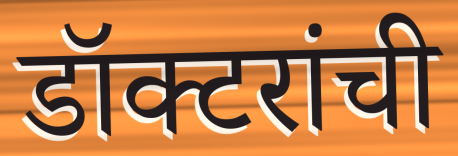
डॉक्टरांची